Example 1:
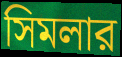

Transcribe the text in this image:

সিমলার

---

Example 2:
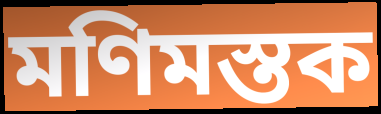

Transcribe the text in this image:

মণিমস্তক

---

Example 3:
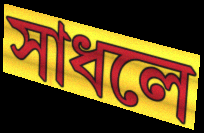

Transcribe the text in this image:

সাধলে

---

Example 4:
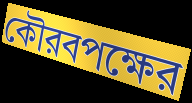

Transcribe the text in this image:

কৌরবপক্ষের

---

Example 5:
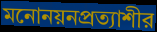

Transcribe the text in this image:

মনোনয়নপ্রত্যাশীর